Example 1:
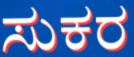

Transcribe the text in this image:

ಸುಕರ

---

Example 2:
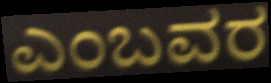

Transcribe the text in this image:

ಎಂಬವರ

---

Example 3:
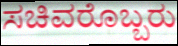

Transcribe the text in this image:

ಸಚಿವರೊಬ್ಬರು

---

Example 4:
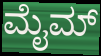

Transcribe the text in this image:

ಮೈಮ್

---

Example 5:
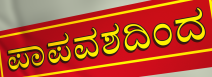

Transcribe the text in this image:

ಪಾಪವಶದಿಂದ